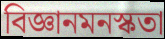
বিজ্ঞানমনস্কতা